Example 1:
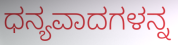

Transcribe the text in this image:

ಧನ್ಯವಾದಗಳನ್ನ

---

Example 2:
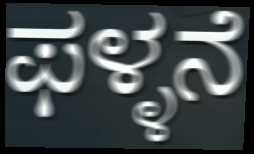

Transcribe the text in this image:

ಫಳ್ಳನೆ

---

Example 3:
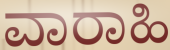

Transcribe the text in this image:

ವಾರಾಹಿ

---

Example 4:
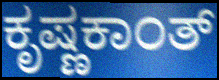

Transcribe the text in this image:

ಕೃಷ್ಣಕಾಂತ್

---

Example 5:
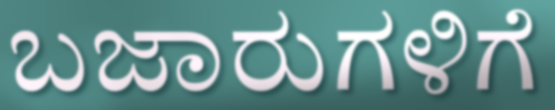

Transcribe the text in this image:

ಬಜಾರುಗಳಿಗೆ